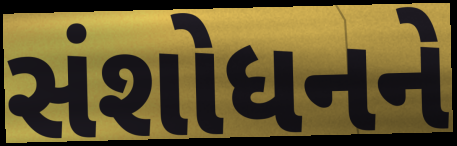
સંશોધનને